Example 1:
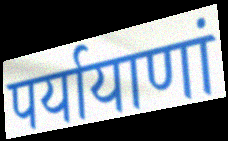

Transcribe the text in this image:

पर्यायाणां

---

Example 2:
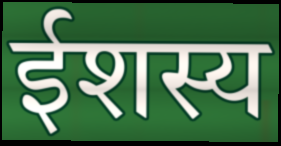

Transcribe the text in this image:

ईशस्य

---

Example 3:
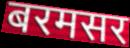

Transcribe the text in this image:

बरमसर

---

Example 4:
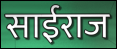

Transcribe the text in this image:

साईराज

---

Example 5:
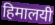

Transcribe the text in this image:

हिमालयी